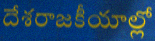
దేశరాజకీయాల్లో